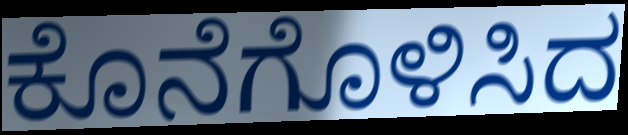
ಕೊನೆಗೊಳಿಸಿದ